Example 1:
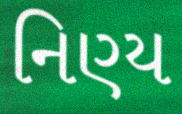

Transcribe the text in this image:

નિણ્ય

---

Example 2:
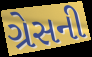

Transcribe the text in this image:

ગ્રેસની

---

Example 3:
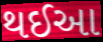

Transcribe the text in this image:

થઈઆ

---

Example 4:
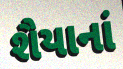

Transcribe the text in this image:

શૈયાનાં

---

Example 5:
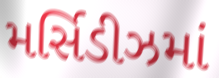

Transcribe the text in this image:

મર્સિડીઝમાં